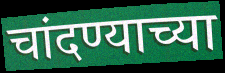
चांदण्याच्या